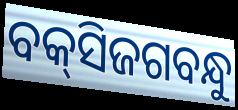
ବକ୍‌ସିଜଗବନ୍ଧୁ